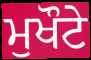
ਮੁਖੌਟੇ